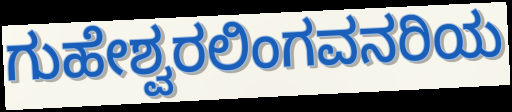
ಗುಹೇಶ್ವರಲಿಂಗವನರಿಯ